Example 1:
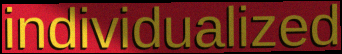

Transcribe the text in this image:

individualized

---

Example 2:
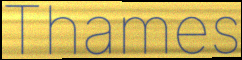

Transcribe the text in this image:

Thames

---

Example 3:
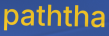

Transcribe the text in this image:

paththa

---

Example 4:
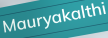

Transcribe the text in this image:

Mauryakalthi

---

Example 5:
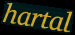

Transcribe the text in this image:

hartal